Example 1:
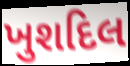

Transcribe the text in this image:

ખુશદિલ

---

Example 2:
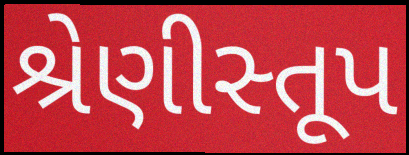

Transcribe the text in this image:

શ્રેણીસ્તૂપ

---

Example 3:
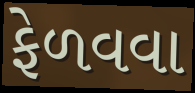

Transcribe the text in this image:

ફેળવવા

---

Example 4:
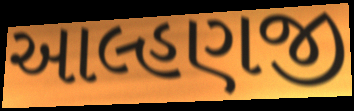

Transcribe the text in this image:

આલ્હણજી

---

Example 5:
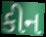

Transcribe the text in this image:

કીન